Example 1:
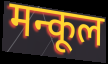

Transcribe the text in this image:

मन्कूल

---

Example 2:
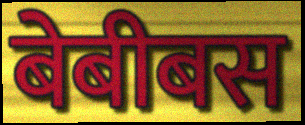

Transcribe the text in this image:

बेबीबस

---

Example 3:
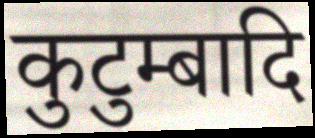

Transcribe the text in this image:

कुटुम्बादि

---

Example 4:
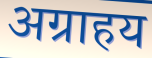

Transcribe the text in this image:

अग्राहय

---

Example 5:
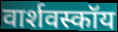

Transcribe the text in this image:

वार्शवस्कॉय